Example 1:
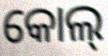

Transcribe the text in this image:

କୋଲ୍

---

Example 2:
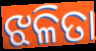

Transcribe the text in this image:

ଝଳିତା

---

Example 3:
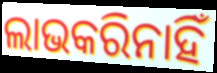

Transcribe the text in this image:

ଲାଭକରିନାହିଁ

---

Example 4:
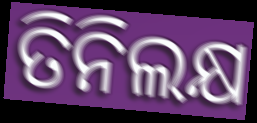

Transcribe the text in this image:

ତିନିଲକ୍ଷ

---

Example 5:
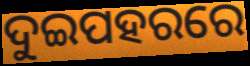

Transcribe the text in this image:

ଦୁଇପହରରେ